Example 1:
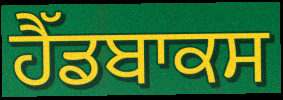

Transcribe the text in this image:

ਹੈੱਡਬਾਕਸ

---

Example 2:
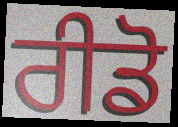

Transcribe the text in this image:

ਰੀਡੋ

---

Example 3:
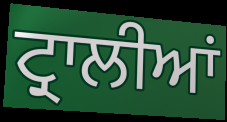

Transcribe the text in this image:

ਟ੍ਰਾਲੀਆਂ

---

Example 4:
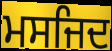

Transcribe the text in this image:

ਮਸਜਿਦ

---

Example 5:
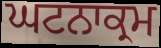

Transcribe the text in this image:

ਘਟਨਾਕ੍ਰਮ